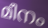
മീനം